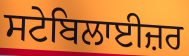
ਸਟੇਬਿਲਾਈਜ਼ਰ